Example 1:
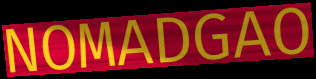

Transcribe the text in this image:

NOMADGAO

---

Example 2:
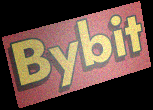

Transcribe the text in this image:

Bybit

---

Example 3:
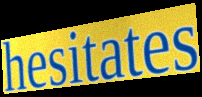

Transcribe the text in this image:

hesitates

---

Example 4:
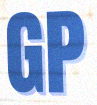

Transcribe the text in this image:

GP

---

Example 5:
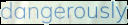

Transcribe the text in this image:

dangerously